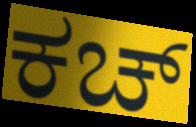
ಕಚ್